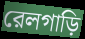
রেলগাড়ি